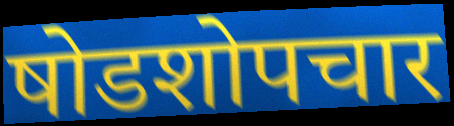
षोडशोपचार